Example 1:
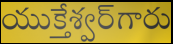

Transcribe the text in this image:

యుక్తేశ్వర్‌గారు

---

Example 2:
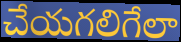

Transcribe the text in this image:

చేయగలిగేలా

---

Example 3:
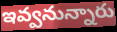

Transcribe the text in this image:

ఇవ్వనున్నారు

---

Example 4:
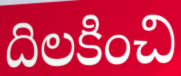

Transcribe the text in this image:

దిలకించి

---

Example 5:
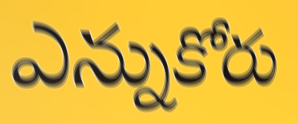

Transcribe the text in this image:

ఎన్నుకోరు